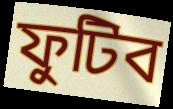
ফুটিব